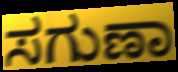
ಸಗುಣಾ